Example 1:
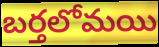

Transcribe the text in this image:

బర్తలోమయి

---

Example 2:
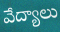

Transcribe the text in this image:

వేద్యాలు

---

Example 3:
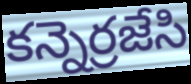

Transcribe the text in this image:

కన్నెర్రజేసి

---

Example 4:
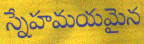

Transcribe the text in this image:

స్నేహమయమైన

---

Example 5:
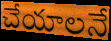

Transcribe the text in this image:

చేయాలనే